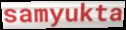
samyukta